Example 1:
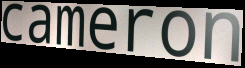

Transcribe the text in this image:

cameron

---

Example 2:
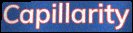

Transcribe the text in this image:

Capillarity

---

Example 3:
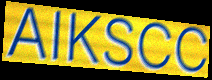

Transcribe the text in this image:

AIKSCC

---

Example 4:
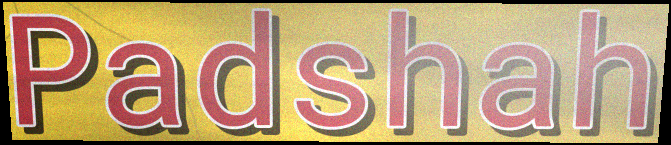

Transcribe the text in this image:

Padshah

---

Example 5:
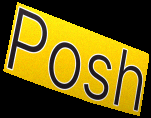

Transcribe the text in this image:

Posh